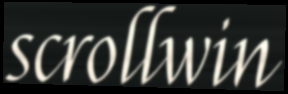
scrollwin